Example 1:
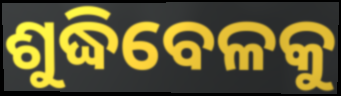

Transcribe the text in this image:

ଶୁଦ୍ଧିବେଳକୁ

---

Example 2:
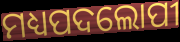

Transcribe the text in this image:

ମଧ୍ଯପଦଲୋପୀ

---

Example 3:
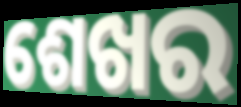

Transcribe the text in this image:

ଶେଖର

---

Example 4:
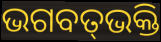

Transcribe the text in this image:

ଭଗବତ୍‌ଭକ୍ତି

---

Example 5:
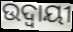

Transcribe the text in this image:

ଉଦ୍ବାୟୀ